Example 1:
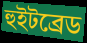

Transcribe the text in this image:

হুইটব্রেড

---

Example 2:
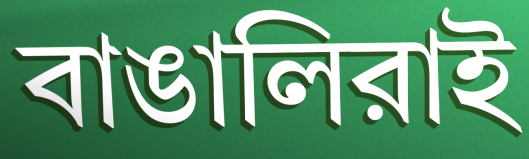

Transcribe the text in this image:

বাঙালিরাই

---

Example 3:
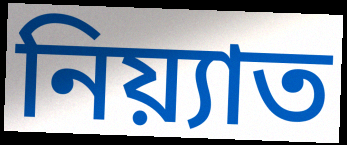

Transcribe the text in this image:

নিয়্যাত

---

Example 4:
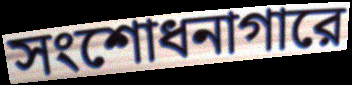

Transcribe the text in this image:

সংশোধনাগারে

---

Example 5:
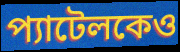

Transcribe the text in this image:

প্যাটেলকেও